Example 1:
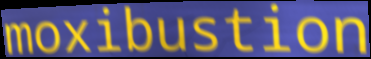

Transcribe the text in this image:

moxibustion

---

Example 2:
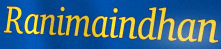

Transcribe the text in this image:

Ranimaindhan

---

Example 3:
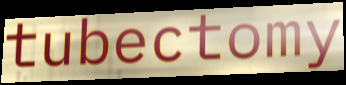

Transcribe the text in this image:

tubectomy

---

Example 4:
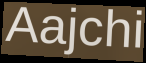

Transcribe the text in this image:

Aajchi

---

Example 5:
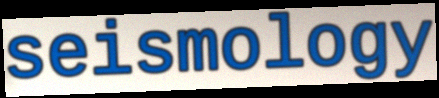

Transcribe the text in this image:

seismology